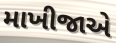
માખીજાએ